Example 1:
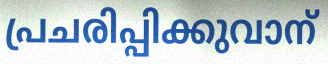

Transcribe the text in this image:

പ്രചരിപ്പിക്കുവാന്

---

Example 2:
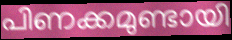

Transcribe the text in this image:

പിണക്കമുണ്ടായി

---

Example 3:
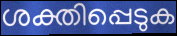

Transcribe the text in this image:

ശക്തിപ്പെടുക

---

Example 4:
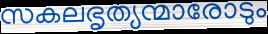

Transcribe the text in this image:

സകലഭൃത്യന്മാരോടും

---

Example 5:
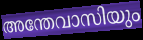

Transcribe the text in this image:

അന്തേവാസിയും